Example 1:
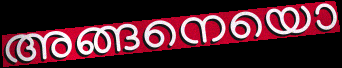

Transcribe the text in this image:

അങ്ങനെയൊ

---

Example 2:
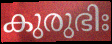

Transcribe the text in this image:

കുരുഭിഃ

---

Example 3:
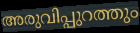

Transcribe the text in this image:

അരുവിപ്പുറത്തും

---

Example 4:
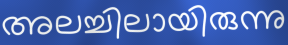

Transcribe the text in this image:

അലച്ചിലായിരുന്നു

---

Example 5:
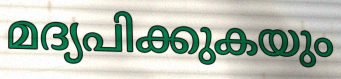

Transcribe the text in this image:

മദ്യപിക്കുകയും